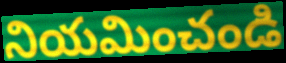
నియమించండి